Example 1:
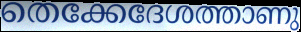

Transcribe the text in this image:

തെക്കേദേശത്താണു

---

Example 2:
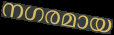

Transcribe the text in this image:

നഗരമായ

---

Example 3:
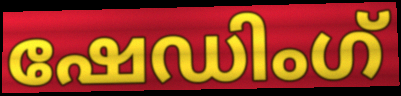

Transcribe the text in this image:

ഷേഡിംഗ്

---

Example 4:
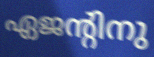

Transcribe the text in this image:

ഏജന്റിനു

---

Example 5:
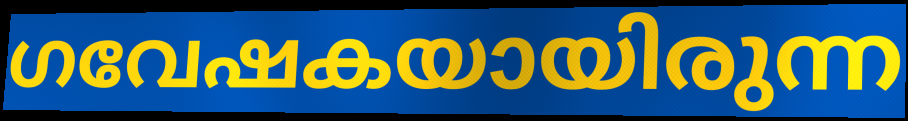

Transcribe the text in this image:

ഗവേഷകയായിരുന്ന